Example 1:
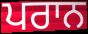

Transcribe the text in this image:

ਪਰਾਨ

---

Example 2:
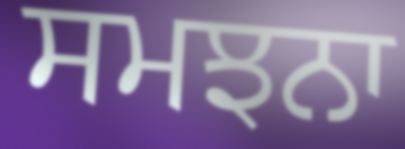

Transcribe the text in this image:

ਸਮਝਨਾ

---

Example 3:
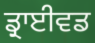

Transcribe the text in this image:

ਡ੍ਰਾਈਵਡ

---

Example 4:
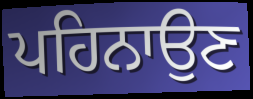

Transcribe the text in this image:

ਪਹਿਨਾਉਣ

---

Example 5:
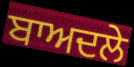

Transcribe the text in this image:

ਬਾਅਦਲੇ